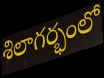
శిలాగర్భంలో